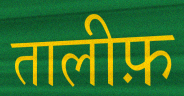
तालीफ़